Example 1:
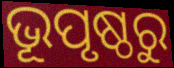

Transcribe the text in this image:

ଭୂପୃଷ୍ଠରୁ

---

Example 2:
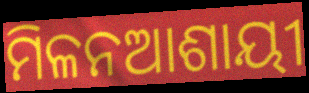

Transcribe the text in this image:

ମିଳନଆଶାୟୀ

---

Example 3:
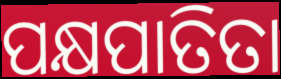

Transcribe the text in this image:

ପକ୍ଷପାତିତା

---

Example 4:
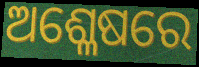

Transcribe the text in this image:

ଅଶ୍ଳେଷରେ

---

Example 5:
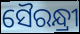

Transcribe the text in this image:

ସୈରନ୍ଧ୍ରୀ